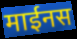
माईनस